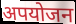
अपयोजन